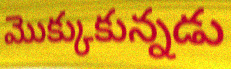
మొక్కుకున్నడు